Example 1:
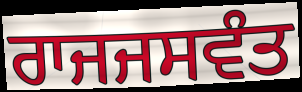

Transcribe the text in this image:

ਰਾਜਜਸਵੰਤ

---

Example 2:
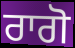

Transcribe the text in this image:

ਰਾਗੋ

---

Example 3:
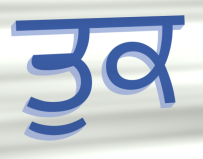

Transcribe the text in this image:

ਤੁਕ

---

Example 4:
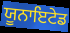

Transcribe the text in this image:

ਯੂਨਾਇਟੇਡ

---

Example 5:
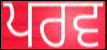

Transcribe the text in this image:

ਪਰਵ